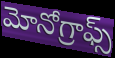
మోనోగ్రాఫ్స్